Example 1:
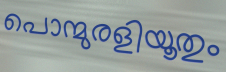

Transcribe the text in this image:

പൊന്മുരളിയൂതും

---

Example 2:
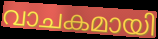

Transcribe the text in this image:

വാചകമായി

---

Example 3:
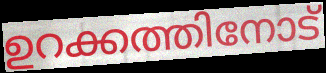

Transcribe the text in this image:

ഉറക്കത്തിനോട്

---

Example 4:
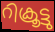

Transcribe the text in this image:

റിക്രൂട്ടു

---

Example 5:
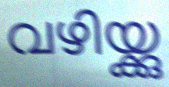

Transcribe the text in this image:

വഴിയ്ക്കു